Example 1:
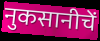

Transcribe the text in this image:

नुकसानीचें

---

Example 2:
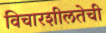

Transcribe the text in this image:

विचारशीलतेची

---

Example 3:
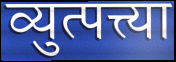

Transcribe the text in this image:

व्युत्पत्त्या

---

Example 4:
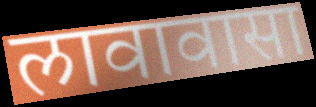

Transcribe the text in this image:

लावावासा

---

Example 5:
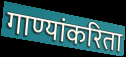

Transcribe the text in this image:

गाण्यांकरिता